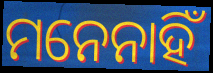
ମନେନାହିଁ